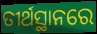
ତୀର୍ଥସ୍ଥାନରେ